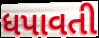
ધપાવતી